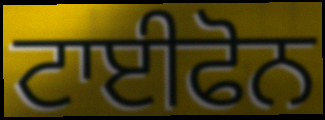
ਟਾਈਫੋਨ